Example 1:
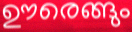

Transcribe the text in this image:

ഊരെങ്ങും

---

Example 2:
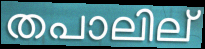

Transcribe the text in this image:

തപാലില്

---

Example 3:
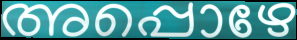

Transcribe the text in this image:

അപ്പൊഴേ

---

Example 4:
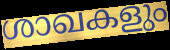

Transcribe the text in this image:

ശാഖകളും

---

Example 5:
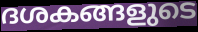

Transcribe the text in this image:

ദശകങ്ങളുടെ